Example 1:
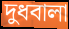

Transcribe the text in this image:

দুধবালা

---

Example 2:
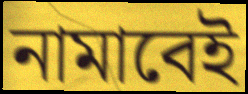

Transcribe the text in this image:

নামাবেই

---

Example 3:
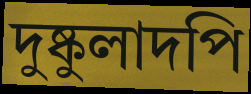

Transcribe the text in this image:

দুষ্কুলাদপি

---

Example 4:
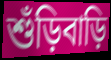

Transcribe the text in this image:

শুঁড়িবাড়ি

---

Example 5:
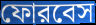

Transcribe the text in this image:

ফোরবেস